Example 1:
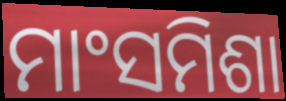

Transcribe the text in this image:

ମାଂସମିଶା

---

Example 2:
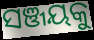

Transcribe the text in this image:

ସଞ୍ଜୟକୁ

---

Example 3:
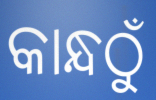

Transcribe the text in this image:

କାନ୍ଧଠୁଁ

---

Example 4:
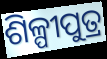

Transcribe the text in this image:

ଶିଳ୍ପୀପୁତ୍ର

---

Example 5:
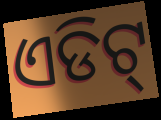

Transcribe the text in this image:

ଏଡିଟ୍